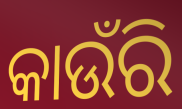
କାଉଁରି